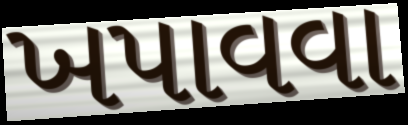
ખપાવવા